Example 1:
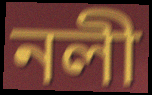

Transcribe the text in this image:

নলী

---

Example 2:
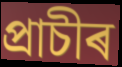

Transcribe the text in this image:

প্ৰাচীৰ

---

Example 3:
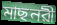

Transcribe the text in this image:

মাছনৱী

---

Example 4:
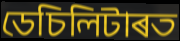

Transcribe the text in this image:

ডেচিলিটাৰত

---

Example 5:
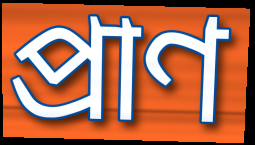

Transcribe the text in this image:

প্ৰাণ